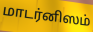
மாடர்னிஸம்